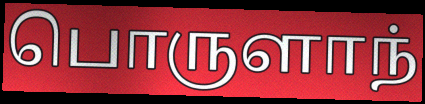
பொருளாந்